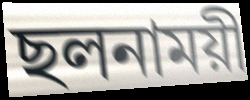
ছলনাময়ী